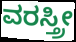
ವರಸ್ತ್ರೀ